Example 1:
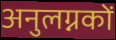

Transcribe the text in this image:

अनुलग्नकों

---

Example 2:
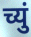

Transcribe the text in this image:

च्युं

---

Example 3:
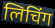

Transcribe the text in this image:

लिचिंग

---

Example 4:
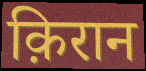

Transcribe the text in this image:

क़िरान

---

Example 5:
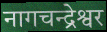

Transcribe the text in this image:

नागचन्द्रेश्वर